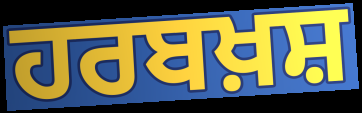
ਹਰਬਖ਼ਸ਼